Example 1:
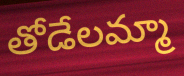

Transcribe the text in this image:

తోడేలమ్మా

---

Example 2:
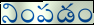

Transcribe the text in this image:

నింపడం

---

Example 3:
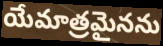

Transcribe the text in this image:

యేమాత్రమైనను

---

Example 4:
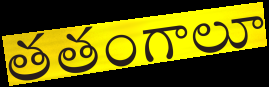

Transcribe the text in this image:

తతంగాలూ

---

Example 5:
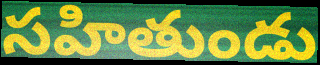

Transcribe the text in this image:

సహితుండు